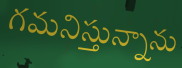
గమనిస్తున్నాను